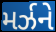
મર્ઝને